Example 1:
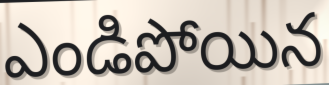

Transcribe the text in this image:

ఎండిపోయిన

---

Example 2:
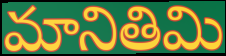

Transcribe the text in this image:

మానితిమి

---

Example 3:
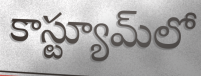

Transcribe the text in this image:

కాస్ట్యూమ్‌లో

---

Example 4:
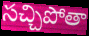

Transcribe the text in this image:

సచ్చిపోతా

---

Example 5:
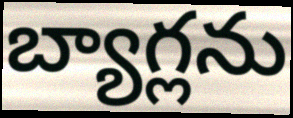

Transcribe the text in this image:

బ్యాగ్లను